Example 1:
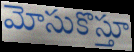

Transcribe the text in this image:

మోసుకొస్తూ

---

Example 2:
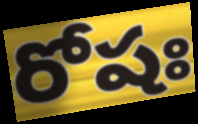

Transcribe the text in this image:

రోషః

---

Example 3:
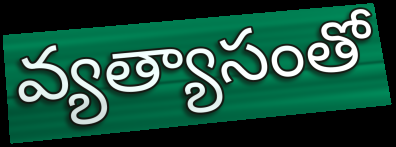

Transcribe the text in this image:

వ్యత్యాసంతో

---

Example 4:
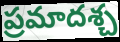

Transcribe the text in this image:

ప్రమాదశ్చ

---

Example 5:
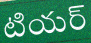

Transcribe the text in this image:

టియర్